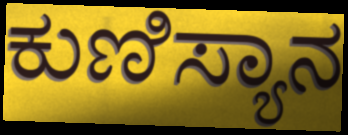
ಕುಣಿಸ್ಯಾನ